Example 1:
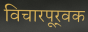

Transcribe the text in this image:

विचारपूर्वक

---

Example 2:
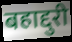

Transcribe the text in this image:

बहाद्दुरी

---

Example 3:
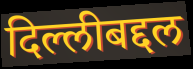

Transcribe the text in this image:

दिल्लीबद्दल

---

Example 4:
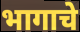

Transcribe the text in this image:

भागाचे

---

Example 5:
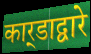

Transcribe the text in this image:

कार्डाद्वारे